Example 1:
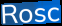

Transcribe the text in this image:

Rosc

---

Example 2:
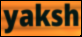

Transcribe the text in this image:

yaksh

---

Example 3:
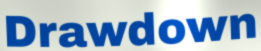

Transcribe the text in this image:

Drawdown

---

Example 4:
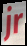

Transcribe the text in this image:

jr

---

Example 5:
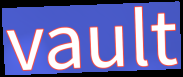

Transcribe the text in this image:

vault